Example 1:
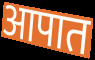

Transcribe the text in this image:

आपात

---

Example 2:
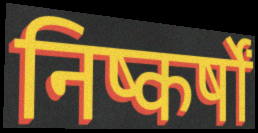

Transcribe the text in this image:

निष्कर्षों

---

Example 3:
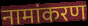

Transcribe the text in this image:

नामांकरण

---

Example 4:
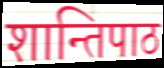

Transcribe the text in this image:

शान्तिपाठ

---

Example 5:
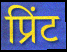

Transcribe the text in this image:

प्रिंट